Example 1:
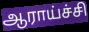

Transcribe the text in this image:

ஆராய்ச்சி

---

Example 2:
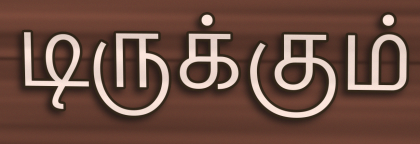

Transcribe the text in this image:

டிருக்கும்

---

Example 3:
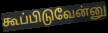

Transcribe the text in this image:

கூப்பிடுவேன்னு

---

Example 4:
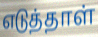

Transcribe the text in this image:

எடுத்தாள்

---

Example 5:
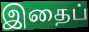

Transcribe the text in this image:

இதைப்